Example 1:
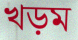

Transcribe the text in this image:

খড়ম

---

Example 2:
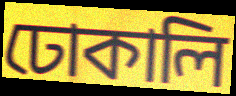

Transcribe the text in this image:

ঢোকালি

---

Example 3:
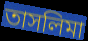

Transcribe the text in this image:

তাসলিমা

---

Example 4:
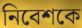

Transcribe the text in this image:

নিবেশকে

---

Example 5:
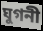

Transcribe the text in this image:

ঘুগনী